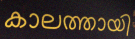
കാലത്തായി